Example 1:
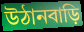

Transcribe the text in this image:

উঠানবাড়ি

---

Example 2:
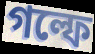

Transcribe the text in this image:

গল্ফে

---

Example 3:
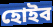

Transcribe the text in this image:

হোইব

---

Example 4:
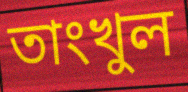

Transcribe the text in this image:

তাংখুল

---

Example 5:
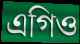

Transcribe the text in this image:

এগিও